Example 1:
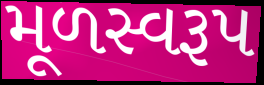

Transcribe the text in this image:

મૂળસ્વરૂપ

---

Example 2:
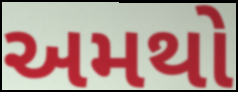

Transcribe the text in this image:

અમથો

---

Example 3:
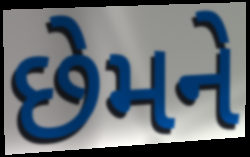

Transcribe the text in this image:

છેમને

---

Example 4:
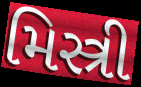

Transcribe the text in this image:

મિસ્ત્રી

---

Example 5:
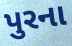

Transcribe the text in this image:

પુરના